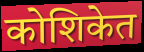
कोशिकेत